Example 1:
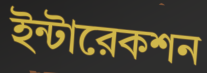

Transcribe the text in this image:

ইন্টারেকশন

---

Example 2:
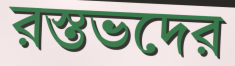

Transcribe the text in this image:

রস্তভদের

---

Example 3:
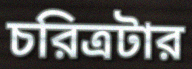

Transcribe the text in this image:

চরিত্রটার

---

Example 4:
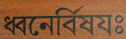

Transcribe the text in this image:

ধ্বনের্বিষযঃ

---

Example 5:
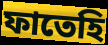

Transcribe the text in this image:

ফাতেহি